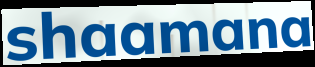
shaamana